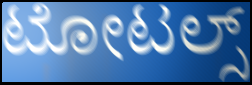
ಟೋಟಲ್ಸ್